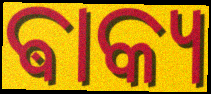
ଵାକ୍ୟ